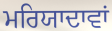
ਮਰਿਯਾਦਾਵਾਂ